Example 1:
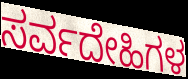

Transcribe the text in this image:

ಸರ್ವದೇಹಿಗಳ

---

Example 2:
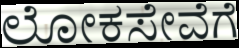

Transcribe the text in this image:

ಲೋಕಸೇವೆಗೆ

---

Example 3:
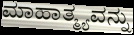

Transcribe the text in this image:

ಮಾಹಾತ್ಮ್ಯವನ್ನು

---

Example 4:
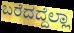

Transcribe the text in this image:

ಬರೆದದ್ದೆಲ್ಲಾ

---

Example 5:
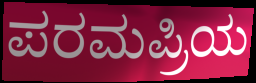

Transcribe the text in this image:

ಪರಮಪ್ರಿಯ